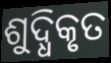
ଶୁଦ୍ଧିକୃତ